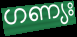
ഗണ്യഃ